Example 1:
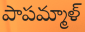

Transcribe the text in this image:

పాపమ్మాళ్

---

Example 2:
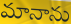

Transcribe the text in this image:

మానాను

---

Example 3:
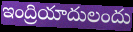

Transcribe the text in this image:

ఇంద్రియాదులందు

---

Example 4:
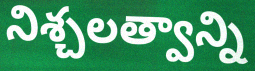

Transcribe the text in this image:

నిశ్చలత్వాన్ని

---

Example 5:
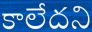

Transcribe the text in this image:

కాలేదని